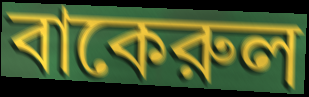
বাকেরুল